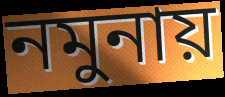
নমুনায়